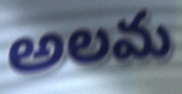
అలమ